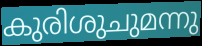
കുരിശുചുമന്നു